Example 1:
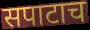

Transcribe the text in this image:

सपाटाच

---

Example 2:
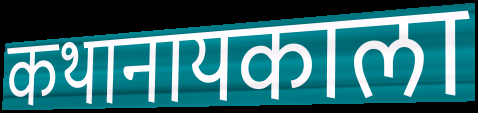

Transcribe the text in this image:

कथानायकाला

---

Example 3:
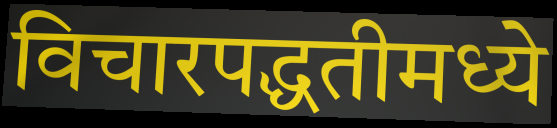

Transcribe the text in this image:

विचारपद्धतीमध्ये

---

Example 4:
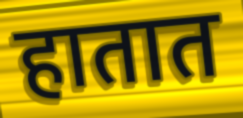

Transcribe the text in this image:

हातात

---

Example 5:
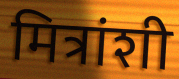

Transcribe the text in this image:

मित्रांशी